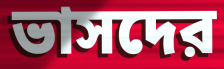
ভাসদের